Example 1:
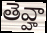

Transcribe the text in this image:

తెవ్హా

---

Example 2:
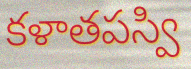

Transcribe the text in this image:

కళాతపస్వి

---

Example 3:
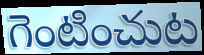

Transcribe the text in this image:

గెంటించుట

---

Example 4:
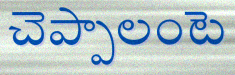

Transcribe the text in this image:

చెప్పాలంటె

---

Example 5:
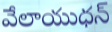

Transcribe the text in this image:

వేలాయుధన్